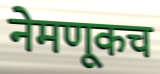
नेमणूकच